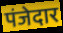
पंजेदार